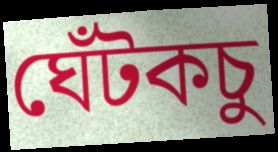
ঘেঁটকচু